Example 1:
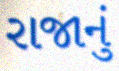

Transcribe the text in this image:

રાજાનું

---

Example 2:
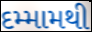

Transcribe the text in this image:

દમ્મામથી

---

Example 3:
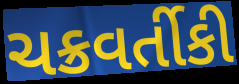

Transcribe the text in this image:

ચક્રવર્તીકી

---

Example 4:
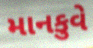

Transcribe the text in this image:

માનકુવે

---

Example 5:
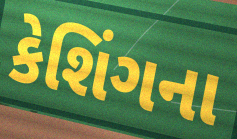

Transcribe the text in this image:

કેશિંગના